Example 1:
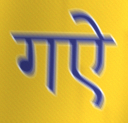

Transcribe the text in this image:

गऐ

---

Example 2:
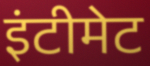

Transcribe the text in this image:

इंटीमेट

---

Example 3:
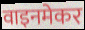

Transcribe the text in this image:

वाइनमेकर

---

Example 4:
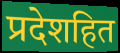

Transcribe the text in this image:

प्रदेशहित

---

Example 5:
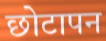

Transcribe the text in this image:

छोटापन